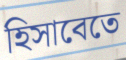
হিসাবেতে